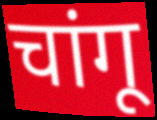
चांगू